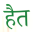
हैत